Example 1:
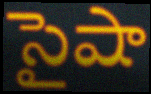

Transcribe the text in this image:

సైషా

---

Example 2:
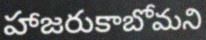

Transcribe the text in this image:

హాజరుకాబోమని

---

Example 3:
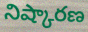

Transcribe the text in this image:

నిష్కారణ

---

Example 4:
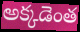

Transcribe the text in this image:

అక్కడెంత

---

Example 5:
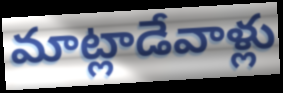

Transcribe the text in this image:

మాట్లాడేవాళ్లు